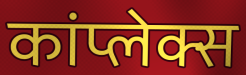
कांप्लेक्स